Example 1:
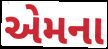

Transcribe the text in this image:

એમના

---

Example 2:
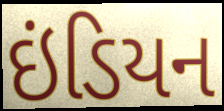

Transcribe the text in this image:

ઇંડિયન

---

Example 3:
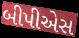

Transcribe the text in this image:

બીપીએસ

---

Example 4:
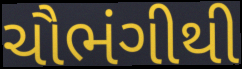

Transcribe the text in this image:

ચૌભંગીથી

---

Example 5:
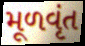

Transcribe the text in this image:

મૂળવૃંત